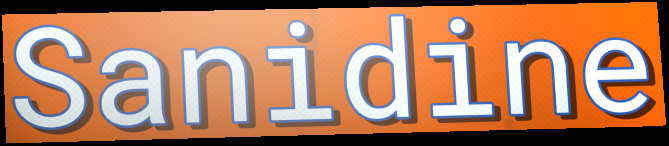
Sanidine